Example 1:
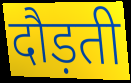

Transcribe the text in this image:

दौड़ती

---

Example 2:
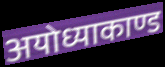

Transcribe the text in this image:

अयोध्याकाण्ड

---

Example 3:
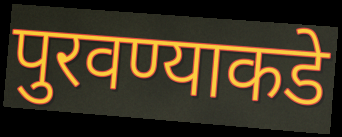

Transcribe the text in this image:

पुरवण्याकडे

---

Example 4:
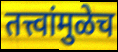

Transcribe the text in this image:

तत्त्वांमुळेच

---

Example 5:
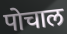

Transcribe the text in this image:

पोचाल